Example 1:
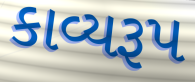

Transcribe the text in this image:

કાવ્યરૂપ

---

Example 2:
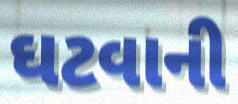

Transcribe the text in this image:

ઘટવાની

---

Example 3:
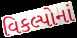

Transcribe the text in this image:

વિકલ્પોનાં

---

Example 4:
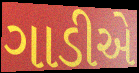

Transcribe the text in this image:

ગાડીએ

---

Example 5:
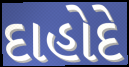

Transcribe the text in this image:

દાહોદે